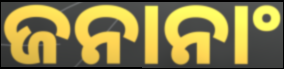
ଜନାନାଂ